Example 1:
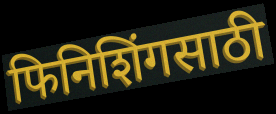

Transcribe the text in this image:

फिनिशिंगसाठी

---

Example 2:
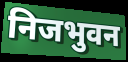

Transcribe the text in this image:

निजभुवन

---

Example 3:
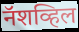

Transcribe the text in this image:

नॅशव्हिल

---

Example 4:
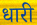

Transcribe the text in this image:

धारी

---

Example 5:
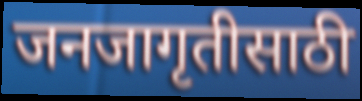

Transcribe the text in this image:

जनजागृतीसाठी